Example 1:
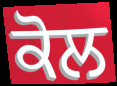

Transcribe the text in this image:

ਕੋਲ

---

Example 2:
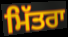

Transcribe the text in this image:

ਮਿੱਤਰਾ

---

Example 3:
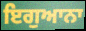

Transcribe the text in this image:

ਇਗੁਆਨਾ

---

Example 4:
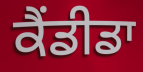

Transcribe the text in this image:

ਕੈਂਡੀਡਾ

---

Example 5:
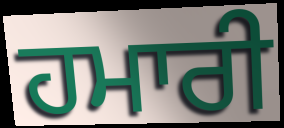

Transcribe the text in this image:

ਹਮਾਰੀ